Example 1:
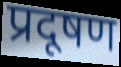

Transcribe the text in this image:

प्रदूषण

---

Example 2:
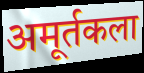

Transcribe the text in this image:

अमूर्तकला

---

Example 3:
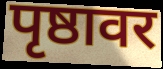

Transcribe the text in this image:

पृष्ठावर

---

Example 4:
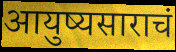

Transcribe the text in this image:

आयुष्यसाराचं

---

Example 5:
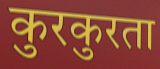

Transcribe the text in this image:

कुरकुरता